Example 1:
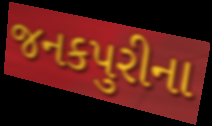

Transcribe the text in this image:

જનકપુરીના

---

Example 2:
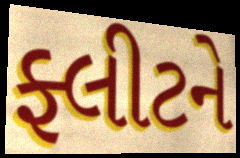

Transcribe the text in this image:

ફ્લીટને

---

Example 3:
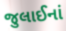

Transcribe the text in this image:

જુલાઈનાં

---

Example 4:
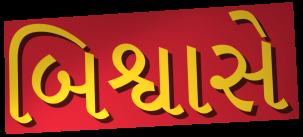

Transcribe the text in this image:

બિશ્વાસે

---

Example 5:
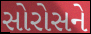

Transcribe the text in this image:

સોરોસને